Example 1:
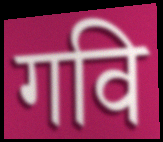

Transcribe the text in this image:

गवि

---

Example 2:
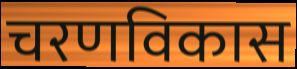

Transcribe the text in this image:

चरणविकास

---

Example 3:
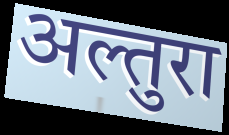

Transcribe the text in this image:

अल्तुरा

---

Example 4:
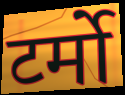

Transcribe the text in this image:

टर्मो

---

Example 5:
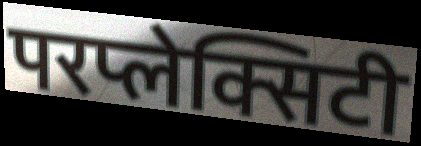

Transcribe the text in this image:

परप्लेक्सिटी